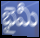
భైమీ